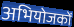
अभियोजकों